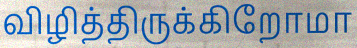
விழித்திருக்கிறோமா